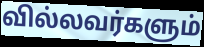
வில்லவர்களும்